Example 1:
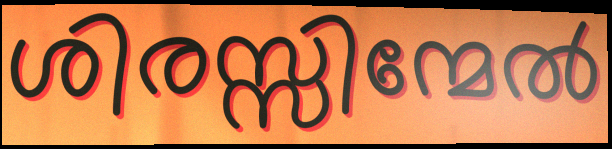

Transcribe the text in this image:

ശിരസ്സിന്മേൽ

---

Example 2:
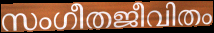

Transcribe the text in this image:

സംഗീതജീവിതം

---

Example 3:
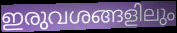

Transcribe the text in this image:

ഇരുവശങ്ങളിലും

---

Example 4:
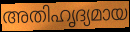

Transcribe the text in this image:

അതിഹൃദ്യമായ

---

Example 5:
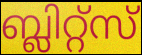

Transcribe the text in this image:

ബ്ലിറ്റ്സ്